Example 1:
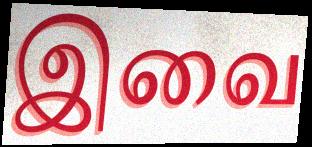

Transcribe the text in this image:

இவை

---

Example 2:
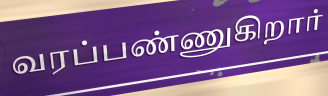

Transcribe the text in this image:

வரப்பண்ணுகிறார்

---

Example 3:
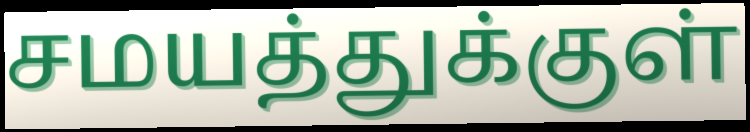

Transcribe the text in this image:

சமயத்துக்குள்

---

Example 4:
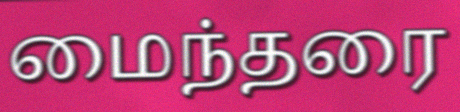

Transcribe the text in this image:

மைந்தரை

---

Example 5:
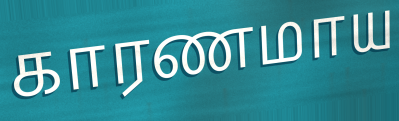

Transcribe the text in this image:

காரணமாய